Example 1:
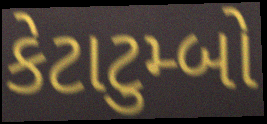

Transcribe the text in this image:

કેટાટુમ્બો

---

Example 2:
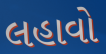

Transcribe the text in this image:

લહાવો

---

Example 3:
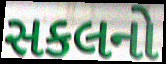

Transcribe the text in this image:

સકલનો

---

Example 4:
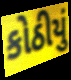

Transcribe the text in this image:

કોઠીયું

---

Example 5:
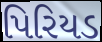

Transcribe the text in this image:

પિરિયડ